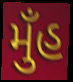
મુઁહ